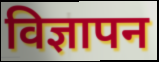
विज्ञापन